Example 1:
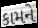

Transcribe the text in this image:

કામને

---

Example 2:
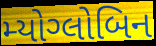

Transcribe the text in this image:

મ્યોગ્લોબિન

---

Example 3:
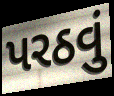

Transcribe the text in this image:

પરઠવું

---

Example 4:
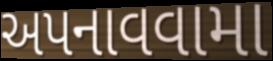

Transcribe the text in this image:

અપનાવવામા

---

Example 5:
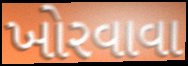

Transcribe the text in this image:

ખોરવાવા